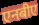
एनबीए